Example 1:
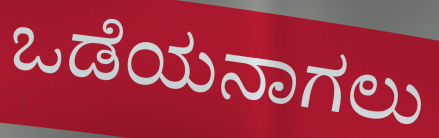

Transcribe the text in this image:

ಒಡೆಯನಾಗಲು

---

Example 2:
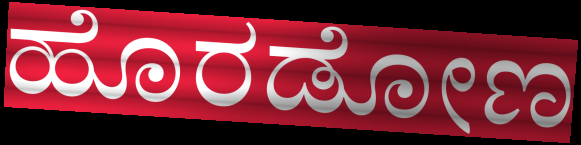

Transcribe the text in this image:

ಹೊರಡೋಣ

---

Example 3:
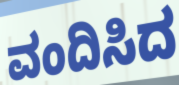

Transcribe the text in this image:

ವಂದಿಸಿದ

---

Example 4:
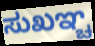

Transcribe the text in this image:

ಸುಖಞ್ಚ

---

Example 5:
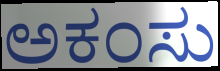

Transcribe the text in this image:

ಅಕಂಸು